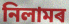
নিলামৰ